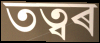
তত্বৰ